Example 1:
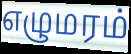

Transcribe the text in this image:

எழுமரம்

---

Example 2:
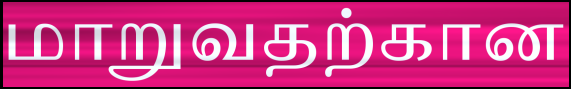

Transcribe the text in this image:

மாறுவதற்கான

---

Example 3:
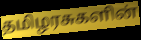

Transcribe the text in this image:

தமிழரசுகளின்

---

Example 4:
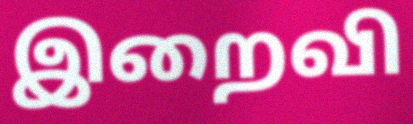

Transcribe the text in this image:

இறைவி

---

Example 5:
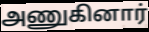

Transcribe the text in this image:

அணுகினார்